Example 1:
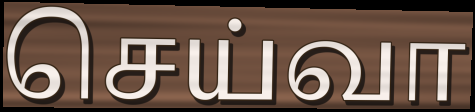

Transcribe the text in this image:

செய்வா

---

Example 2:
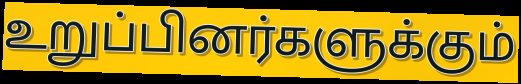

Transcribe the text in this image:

உறுப்பினர்களுக்கும்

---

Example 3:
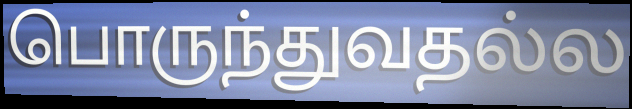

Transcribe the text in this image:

பொருந்துவதல்ல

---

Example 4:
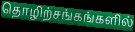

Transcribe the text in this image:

தொழிற்சங்கங்களில்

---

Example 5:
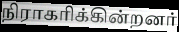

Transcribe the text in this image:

நிராகரிக்கின்றனர்